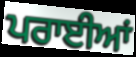
ਪਰਾਈਆਂ